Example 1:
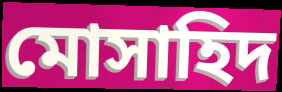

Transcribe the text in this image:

মোসাহিদ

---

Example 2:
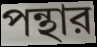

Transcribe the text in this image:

পন্থার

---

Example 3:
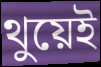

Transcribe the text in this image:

থুয়েই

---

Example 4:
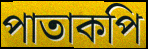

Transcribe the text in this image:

পাতাকপি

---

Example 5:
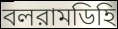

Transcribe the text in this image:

বলরামডিহি